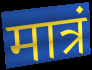
मात्रं